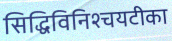
सिद्धिविनिश्चयटीका